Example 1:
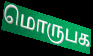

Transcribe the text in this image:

மொருபக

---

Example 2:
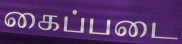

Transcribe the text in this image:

கைப்படை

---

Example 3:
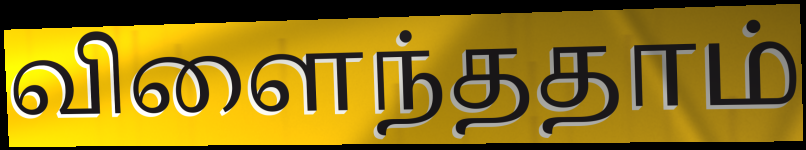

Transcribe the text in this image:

விளைந்ததாம்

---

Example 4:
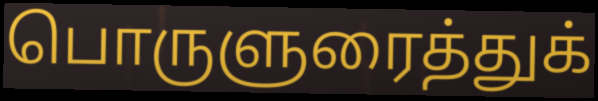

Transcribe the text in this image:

பொருளுரைத்துக்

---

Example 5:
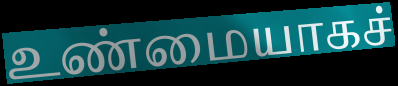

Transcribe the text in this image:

உண்மையாகச்